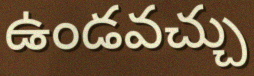
ఉండవచ్చు